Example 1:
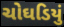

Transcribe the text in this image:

ચોઘડિયું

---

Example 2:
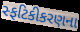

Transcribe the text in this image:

સ્ફટિકીકરણના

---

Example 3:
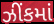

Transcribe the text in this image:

ઝીંકમાં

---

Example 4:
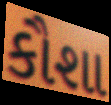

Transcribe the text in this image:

કૌશા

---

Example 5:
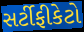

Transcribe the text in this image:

સર્ટીફીકેટો